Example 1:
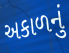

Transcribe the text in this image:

અકાળનું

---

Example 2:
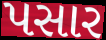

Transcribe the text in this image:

પસાર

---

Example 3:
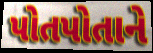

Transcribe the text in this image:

પોતપોતાને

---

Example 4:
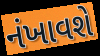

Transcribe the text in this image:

નંખાવશે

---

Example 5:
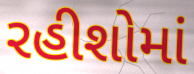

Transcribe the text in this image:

રહીશોમાં